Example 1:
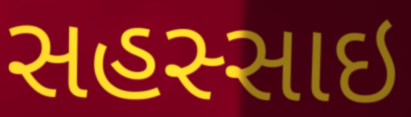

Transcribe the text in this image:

સહસ્સાઇ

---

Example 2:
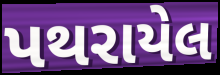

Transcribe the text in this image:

પથરાયેલ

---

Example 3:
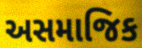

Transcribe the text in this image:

અસમાજિક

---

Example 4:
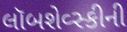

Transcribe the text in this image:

લૉબશેવ્સ્કીની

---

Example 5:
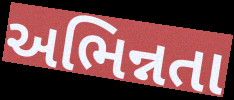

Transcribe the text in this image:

અભિન્નતા